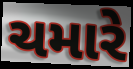
ચમારે